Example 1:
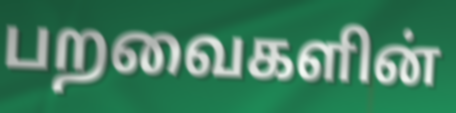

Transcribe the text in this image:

பறவைகளின்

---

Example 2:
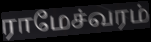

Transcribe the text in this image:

ராமேச்வரம்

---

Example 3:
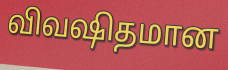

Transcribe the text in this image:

விவஷிதமான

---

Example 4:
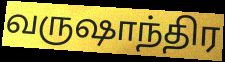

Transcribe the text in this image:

வருஷாந்திர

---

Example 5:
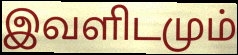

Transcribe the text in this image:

இவளிடமும்